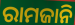
ରାମଜାନି